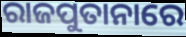
ରାଜପୁତାନାରେ